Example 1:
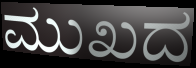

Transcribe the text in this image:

ಮುಖದ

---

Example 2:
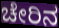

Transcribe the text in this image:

ಚೇರಿನ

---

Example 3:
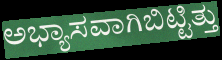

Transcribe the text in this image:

ಅಭ್ಯಾಸವಾಗಿಬಿಟ್ಟಿತ್ತು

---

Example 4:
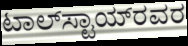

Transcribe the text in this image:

ಟಾಲ್‌ಸ್ಟಾಯ್‌ರವರ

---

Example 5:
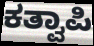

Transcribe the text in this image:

ಕತ್ವಾಪಿ